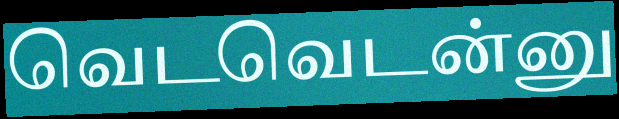
வெடவெடன்னு